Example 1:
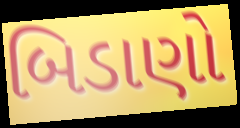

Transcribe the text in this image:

બિડાણો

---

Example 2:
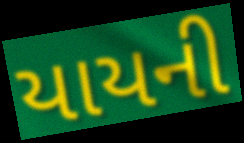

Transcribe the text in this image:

યાયની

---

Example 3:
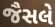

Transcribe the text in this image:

જૈસલે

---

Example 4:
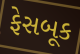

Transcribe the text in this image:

ફેસબૂક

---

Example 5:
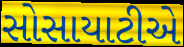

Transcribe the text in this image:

સોસાયાટીએ